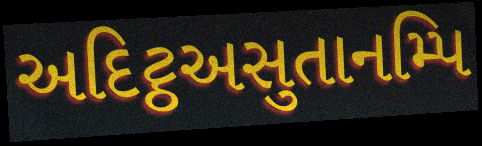
અદિટ્ઠઅસુતાનમ્પિ